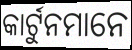
କାର୍ଟୁନମାନେ